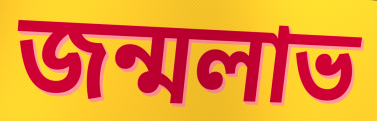
জন্মলাভ